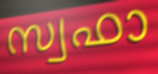
സ്വഫാ